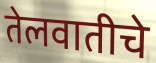
तेलवातीचे